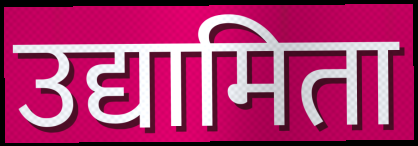
उद्यामिता